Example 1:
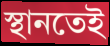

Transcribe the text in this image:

স্থানতেই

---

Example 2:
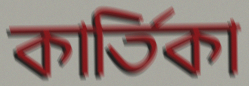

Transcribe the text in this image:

কাৰ্তিকা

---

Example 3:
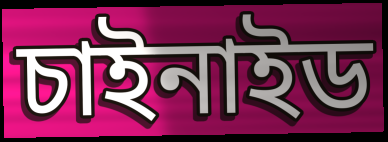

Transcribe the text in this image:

চাইনাইড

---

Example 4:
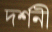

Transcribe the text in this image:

দৰ্শনী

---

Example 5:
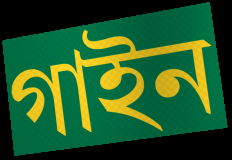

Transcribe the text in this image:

গাইন